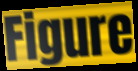
Figure